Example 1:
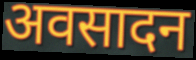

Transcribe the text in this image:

अवसादन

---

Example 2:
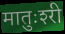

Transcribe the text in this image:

मातुःश्री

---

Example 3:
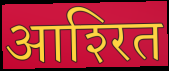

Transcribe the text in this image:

आश्रित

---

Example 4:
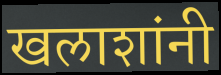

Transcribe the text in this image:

खलाशांनी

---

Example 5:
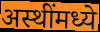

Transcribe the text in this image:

अस्थींमध्ये